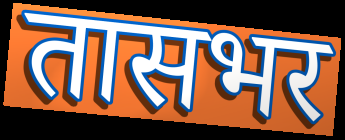
तासभर